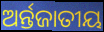
ଅର୍ନ୍ତଜାତୀୟ